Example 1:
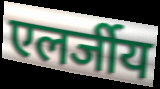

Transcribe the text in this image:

एलर्जीय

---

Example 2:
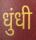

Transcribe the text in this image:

धुंधी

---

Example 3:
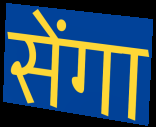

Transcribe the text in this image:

सेंगा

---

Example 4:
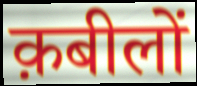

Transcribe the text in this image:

क़बीलों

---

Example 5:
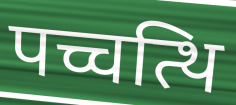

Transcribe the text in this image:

पच्चत्थि